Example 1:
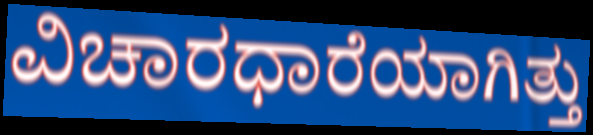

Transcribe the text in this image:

ವಿಚಾರಧಾರೆಯಾಗಿತ್ತು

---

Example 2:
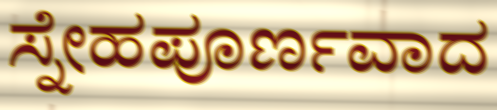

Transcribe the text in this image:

ಸ್ನೇಹಪೂರ್ಣವಾದ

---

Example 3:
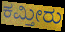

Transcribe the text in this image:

ಕಮ್ತೀರು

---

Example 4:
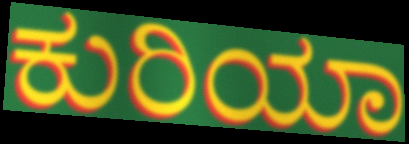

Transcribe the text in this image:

ಕುರಿಯಾ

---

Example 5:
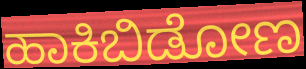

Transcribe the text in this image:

ಹಾಕಿಬಿಡೋಣ